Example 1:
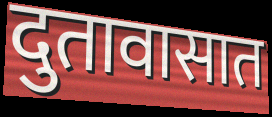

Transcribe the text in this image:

दुतावासात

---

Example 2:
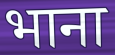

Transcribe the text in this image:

भाना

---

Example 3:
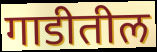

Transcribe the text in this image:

गाडीतील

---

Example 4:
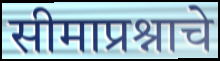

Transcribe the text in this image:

सीमाप्रश्नाचे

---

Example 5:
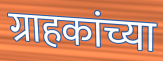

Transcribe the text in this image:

ग्राहकांच्या